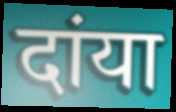
दांया